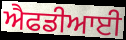
ਐਫਡੀਆਈ